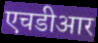
एचडीआर